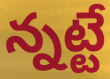
న్నట్టే